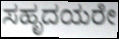
ಸಹೃದಯರೇ